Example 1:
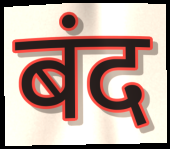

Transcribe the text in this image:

बंद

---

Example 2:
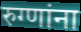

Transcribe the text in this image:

रुग्णांना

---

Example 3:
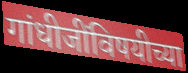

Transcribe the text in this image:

गांधीजींविषयीच्या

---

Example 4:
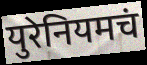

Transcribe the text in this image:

युरेनियमचं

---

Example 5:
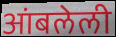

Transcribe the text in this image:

आंबलेली